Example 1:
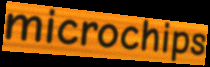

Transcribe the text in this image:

microchips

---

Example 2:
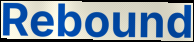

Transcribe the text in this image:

Rebound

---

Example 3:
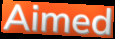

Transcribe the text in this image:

Aimed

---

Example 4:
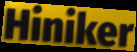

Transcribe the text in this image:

Hiniker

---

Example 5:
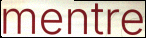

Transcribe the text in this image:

mentre